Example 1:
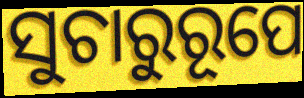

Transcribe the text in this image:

ସୁଚାରୁରୂପେ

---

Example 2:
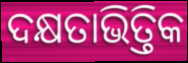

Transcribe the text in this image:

ଦକ୍ଷତାଭିତ୍ତିକ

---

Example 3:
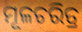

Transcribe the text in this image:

ମୂଳଚରିତ୍ର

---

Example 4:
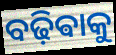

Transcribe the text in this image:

ବଢ଼ିଵାକୁ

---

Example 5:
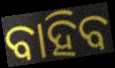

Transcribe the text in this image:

ବାହିବ